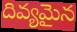
దివ్యమైన